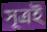
সূত্ৰই